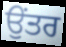
ਉਂਤਰ